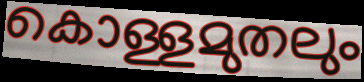
കൊള്ളമുതലും